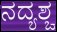
ನದ್ಯಶ್ಚ